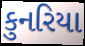
કુનરિયા